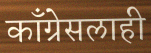
काँग्रेसलाही